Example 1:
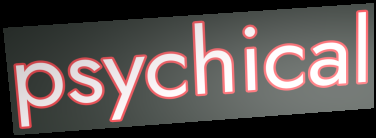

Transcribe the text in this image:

psychical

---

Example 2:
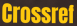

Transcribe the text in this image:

Crossref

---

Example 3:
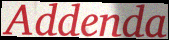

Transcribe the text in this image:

Addenda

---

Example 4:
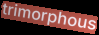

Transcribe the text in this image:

trimorphous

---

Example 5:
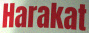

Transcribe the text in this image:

Harakat